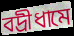
বদ্রীধামে